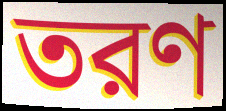
তরণ